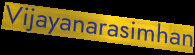
Vijayanarasimhan